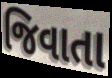
જિવાતા